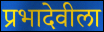
प्रभादेवीला